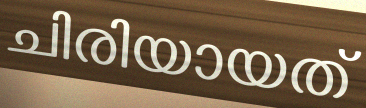
ചിരിയായത്